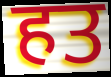
हउ